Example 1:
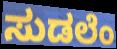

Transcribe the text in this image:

ಸುಡಲೆಂ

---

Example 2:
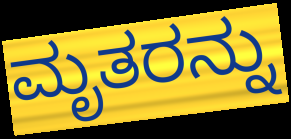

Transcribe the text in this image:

ಮೃತರನ್ನು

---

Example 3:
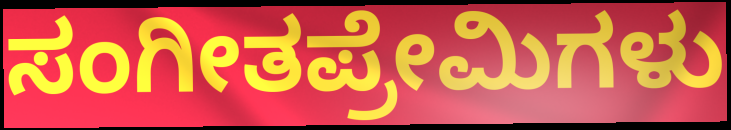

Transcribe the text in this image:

ಸಂಗೀತಪ್ರೇಮಿಗಳು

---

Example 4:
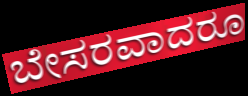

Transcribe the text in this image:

ಬೇಸರವಾದರೂ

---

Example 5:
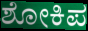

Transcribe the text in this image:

ಶೋಕಿಪ